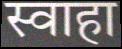
स्‍वाहा